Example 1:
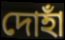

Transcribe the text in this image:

দোহাঁ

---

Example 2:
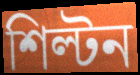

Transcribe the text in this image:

শিল্টন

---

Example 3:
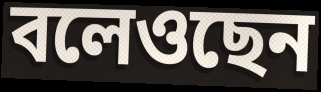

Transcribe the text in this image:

বলেওছেন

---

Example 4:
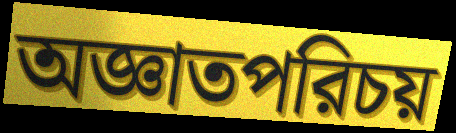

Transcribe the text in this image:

অজ্ঞাতপরিচয়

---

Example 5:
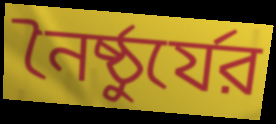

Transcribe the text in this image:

নৈষ্ঠুর্যের